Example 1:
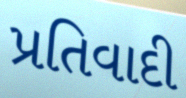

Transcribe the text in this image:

પ્રતિવાદી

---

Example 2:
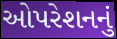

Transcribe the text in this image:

ઓપરેશનનું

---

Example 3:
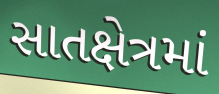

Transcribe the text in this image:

સાતક્ષેત્રમાં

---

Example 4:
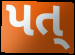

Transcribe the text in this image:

પત્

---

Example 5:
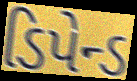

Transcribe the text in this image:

ડિપેન્ડ